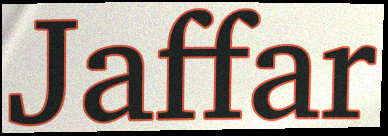
Jaffar